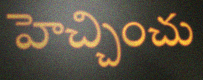
హెచ్చించు